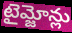
టైమ్జోన్లు